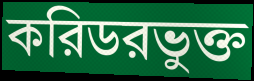
করিডরভুক্ত